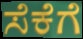
ಸೆಕೆಗೆ